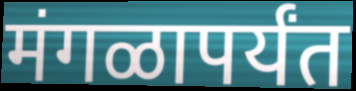
मंगळापर्यंत